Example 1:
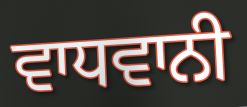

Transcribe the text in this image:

ਵਾਧਵਾਨੀ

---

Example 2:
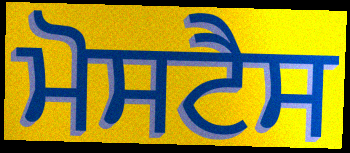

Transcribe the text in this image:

ਮੋਸਟੈਸ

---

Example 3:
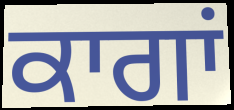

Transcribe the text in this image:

ਕਾਗਾਂ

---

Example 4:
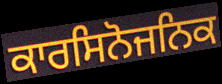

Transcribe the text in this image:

ਕਾਰਸਿਨੋਜਨਿਕ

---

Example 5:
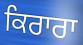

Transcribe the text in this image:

ਕਿਰਾਰਾ